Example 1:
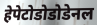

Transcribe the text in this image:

हेपेटोडोडोडेनल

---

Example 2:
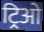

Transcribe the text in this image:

ट्रिओ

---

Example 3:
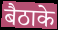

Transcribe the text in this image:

बैठाके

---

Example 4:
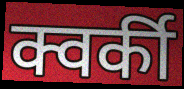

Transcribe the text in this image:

क्वर्की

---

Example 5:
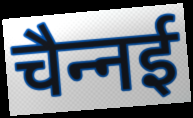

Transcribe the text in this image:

चैन्नई